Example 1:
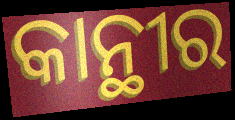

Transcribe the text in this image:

କାନ୍ଥୀର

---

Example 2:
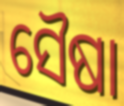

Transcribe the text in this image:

ସୈଷା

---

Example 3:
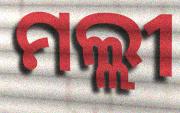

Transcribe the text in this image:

ମଲ୍ଲୀ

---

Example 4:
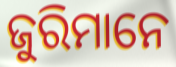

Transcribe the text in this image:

ଜୁରିମାନେ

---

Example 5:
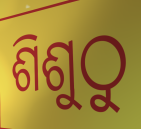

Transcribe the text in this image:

ଶିଶୁଠୁ